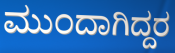
ಮುಂದಾಗಿದ್ದರ